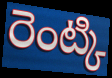
రెంట్కి